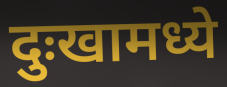
दुःखामध्ये